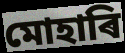
মোহাৰি